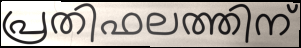
പ്രതിഫലത്തിന്